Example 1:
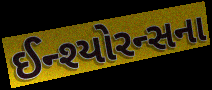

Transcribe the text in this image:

ઈન્શ્યોરન્સના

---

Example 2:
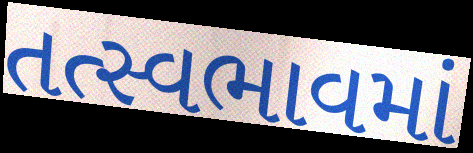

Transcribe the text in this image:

તત્સ્વભાવમાં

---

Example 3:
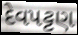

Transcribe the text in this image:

દેવપટ્ટણ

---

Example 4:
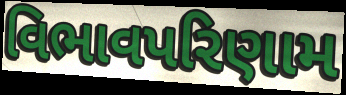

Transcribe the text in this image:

વિભાવપરિણામ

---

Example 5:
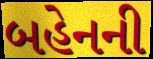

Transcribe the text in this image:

બહેનની